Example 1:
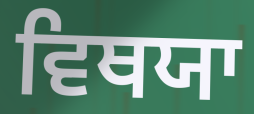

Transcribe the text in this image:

ਵਿਥਯਾ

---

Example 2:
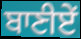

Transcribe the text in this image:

ਬਾਣੀਏਂ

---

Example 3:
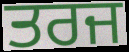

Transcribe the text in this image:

ਤਰਜ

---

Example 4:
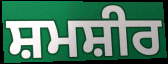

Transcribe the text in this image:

ਸ਼ਮਸ਼ੀਰ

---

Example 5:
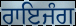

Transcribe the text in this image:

ਰਾਇਜੰਗ